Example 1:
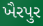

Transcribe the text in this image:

ખૈરપુર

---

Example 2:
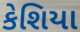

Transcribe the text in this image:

કેશિયા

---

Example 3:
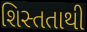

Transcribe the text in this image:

શિસ્તતાથી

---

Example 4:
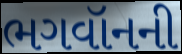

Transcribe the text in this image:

ભગવૉનની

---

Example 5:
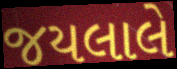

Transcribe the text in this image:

જયલાલે